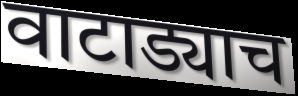
वाटाड्याच